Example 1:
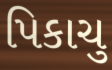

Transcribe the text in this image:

પિકાચુ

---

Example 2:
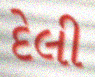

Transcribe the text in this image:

દેલી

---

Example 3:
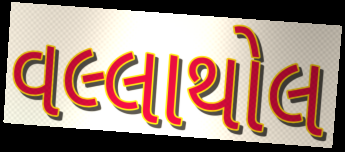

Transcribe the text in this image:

વલ્લાથોલ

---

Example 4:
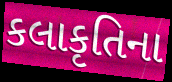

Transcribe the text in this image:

કલાકૃતિના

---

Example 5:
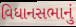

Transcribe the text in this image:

વિધાનસભાનું